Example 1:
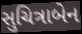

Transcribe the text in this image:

સુચિત્રાબેન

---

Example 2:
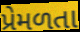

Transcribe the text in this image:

પ્રેમળતા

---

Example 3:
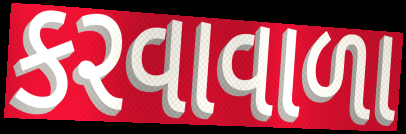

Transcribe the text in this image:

કરવાવાળા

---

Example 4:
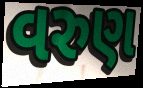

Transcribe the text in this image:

વરુણ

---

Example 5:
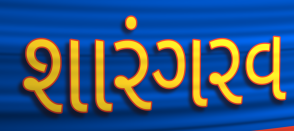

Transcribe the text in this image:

શારંગરવ